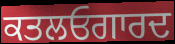
ਕਤਲਓਗਾਰਦ